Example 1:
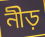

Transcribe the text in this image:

নীড়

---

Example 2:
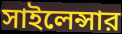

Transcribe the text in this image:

সাইলেন্সার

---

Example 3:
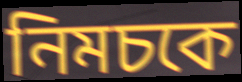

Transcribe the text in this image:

নিমচকে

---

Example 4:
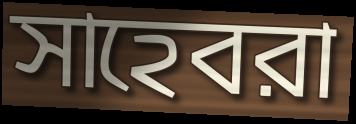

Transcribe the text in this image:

সাহেবরা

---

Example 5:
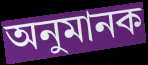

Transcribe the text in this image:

অনুমানক